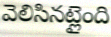
వెలిసినట్లైంది